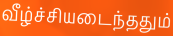
வீழ்ச்சியடைந்ததும்